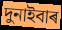
দুনাইবাৰ